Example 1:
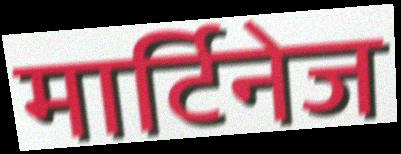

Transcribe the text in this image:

मार्टिनेज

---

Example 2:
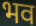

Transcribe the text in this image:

भव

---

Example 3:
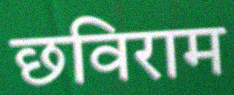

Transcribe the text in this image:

छविराम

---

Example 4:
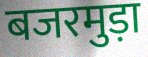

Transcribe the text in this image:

बजरमुड़ा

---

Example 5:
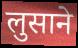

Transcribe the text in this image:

लुसाने